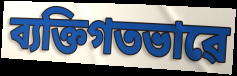
ব্যক্তিগতভাৱে